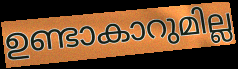
ഉണ്ടാകാറുമില്ല